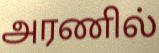
அரணில்